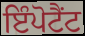
ਇੰਪੋਟੈਂਟ